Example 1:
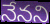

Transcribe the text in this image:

నేనని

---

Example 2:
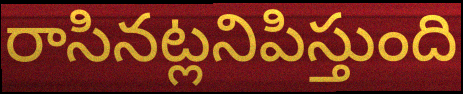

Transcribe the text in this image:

రాసినట్లనిపిస్తుంది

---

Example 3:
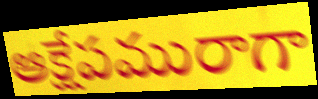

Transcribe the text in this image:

ఆక్షేపమురాగా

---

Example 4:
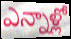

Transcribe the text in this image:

ఎన్నాళ్లో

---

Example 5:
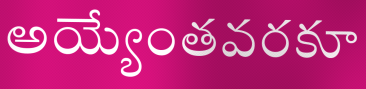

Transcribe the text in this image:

అయ్యేంతవరకూ